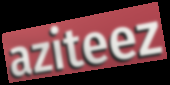
aziteez